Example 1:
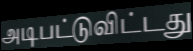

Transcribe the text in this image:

அடிபட்டுவிட்டது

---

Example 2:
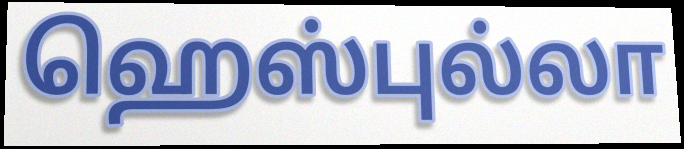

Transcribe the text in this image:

ஹெஸ்புல்லா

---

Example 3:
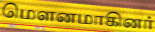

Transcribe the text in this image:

மௌனமாகினர்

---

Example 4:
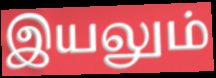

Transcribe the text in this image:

இயலும்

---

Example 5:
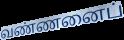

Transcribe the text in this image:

வண்ணனைப்